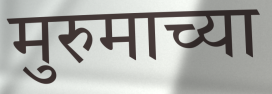
मुरुमाच्या